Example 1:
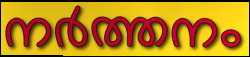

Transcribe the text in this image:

നർത്തനം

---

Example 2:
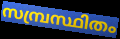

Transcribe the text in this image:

സമ്പ്രസ്ഥിതം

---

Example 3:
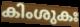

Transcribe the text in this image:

കിംശുകഃ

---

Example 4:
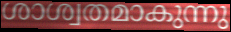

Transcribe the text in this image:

ശാശ്വതമാകുന്നു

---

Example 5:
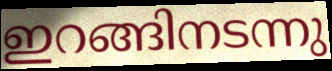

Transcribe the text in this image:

ഇറങ്ങിനടന്നു